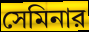
সেমিনার